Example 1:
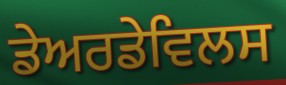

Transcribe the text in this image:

ਡੇਅਰਡੇਵਿਲਸ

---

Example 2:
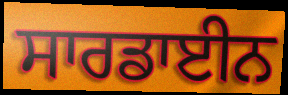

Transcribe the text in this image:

ਸਾਰਡਾਈਨ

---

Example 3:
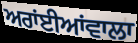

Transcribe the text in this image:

ਅਰਾਂਈਆਂਵਾਲਾ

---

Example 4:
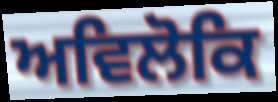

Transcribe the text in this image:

ਅਵਿਲੋਕਿ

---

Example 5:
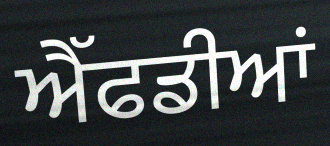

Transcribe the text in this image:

ਐੱਫਡੀਆਂ